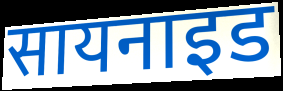
सायनाइड